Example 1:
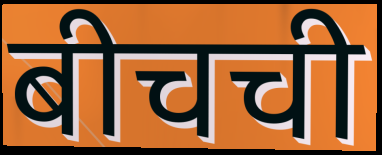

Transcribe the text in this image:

बीचची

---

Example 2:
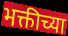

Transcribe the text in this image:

भक्तीच्या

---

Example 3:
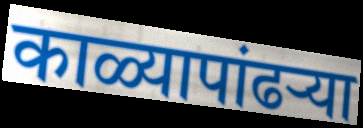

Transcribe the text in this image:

काळ्यापांढऱ्या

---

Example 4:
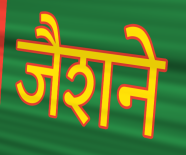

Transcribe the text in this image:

जैशने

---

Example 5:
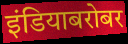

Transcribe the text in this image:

इंडियाबरोबर